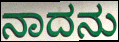
ನಾದನು